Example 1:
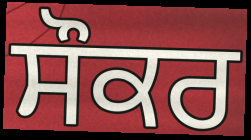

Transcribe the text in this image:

ਸੌਕਰ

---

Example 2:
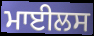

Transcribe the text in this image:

ਮਾਈਲਸ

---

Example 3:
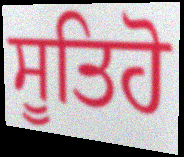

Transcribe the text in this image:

ਸੂਤਿਹੋ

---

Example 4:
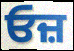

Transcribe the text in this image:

ਓਜ਼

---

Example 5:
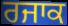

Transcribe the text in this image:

ਰਜਾਕ